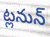
ట్లనున్